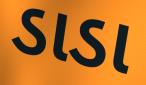
ડાડા